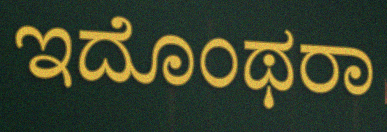
ಇದೊಂಥರಾ